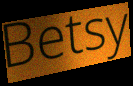
Betsy